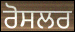
ਰੋਸਲਰ